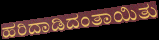
ಹರಿದಾಡಿದಂತಾಯಿತು